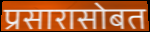
प्रसारासोबत